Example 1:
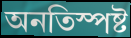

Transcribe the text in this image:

অনতিস্পষ্ট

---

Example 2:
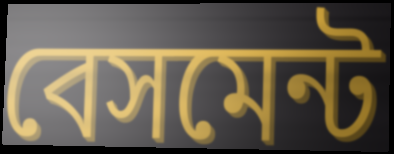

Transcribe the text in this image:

বেসমেন্ট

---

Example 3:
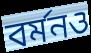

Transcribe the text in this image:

বর্মনও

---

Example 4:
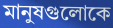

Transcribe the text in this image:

মানুষগুলোকে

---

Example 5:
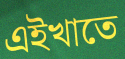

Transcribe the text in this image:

এইখাতে